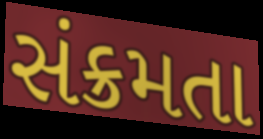
સંક્રમતા